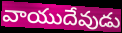
వాయుదేవుడు